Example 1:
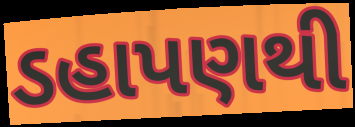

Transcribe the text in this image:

ડહાપણથી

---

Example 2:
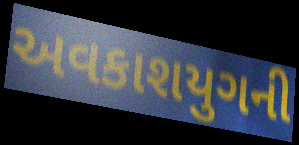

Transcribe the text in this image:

અવકાશયુગની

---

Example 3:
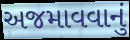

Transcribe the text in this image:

અજમાવવાનું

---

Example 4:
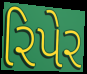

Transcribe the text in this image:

રિપેર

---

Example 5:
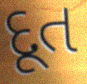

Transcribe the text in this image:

દૂત